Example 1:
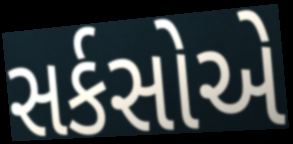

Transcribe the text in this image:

સર્કસોએ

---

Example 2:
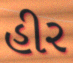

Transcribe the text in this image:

હીર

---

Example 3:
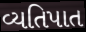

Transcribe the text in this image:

વ્યતિપાત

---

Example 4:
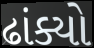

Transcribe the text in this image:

ઢાંક્યો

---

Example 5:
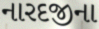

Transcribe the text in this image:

નારદજીના